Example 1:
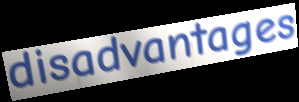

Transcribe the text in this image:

disadvantages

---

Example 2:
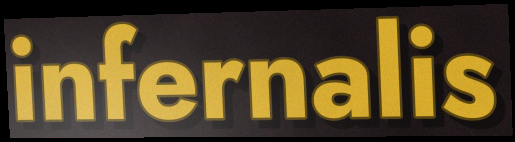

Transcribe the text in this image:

infernalis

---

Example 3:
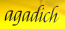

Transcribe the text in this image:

agadich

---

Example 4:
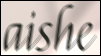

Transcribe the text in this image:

aishe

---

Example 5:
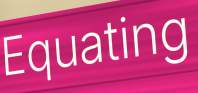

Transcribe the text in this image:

Equating